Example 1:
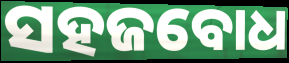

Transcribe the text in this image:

ସହଜବୋଧ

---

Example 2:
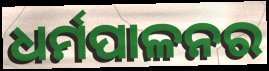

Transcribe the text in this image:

ଧର୍ମପାଳନର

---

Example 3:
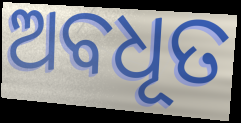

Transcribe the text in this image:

ଅବଧୂତ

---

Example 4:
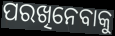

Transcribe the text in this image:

ପରଖିନେବାକୁ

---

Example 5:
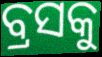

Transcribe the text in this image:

ବ୍ରସକୁ